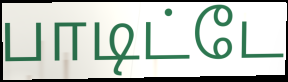
பாடிட்டே